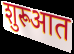
शुरूआत